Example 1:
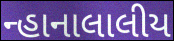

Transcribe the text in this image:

ન્હાનાલાલીય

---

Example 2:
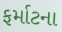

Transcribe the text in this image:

ફર્માટના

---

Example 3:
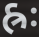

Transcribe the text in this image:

હ્રઃ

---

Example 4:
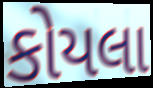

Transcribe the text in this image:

કોયલા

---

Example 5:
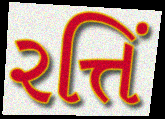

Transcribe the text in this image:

રત્તિં